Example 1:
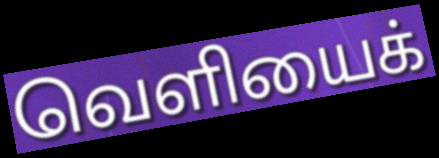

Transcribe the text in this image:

வெளியைக்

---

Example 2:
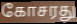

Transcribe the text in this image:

கோசரது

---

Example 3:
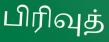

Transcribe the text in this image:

பிரிவுத்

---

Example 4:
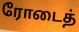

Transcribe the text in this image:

ரோடைத்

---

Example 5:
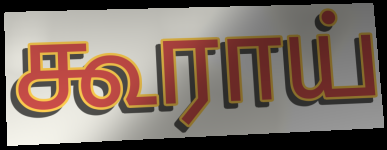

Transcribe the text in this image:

கூராய்